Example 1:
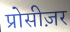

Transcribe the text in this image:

प्रोसीज़र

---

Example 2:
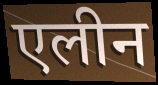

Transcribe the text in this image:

एलीन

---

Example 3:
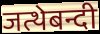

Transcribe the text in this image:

जत्थेबन्दी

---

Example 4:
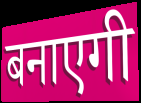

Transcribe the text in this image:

बनाएगी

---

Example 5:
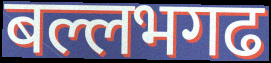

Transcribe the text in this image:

बल्लभगढ